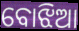
ବୋଝିଆ